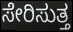
ಸೇರಿಸುತ್ತ